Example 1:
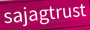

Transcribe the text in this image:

sajagtrust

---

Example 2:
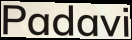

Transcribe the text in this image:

Padavi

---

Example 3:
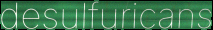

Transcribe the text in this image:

desulfuricans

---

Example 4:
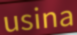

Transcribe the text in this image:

usina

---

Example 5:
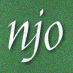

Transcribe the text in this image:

njo